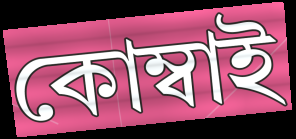
কোম্বাই